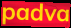
padva